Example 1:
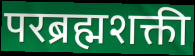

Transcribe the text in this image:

परब्रह्मशक्ती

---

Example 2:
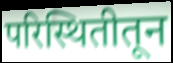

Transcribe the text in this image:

परिस्थितीतून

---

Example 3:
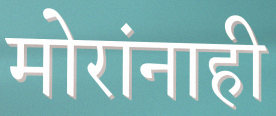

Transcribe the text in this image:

मोरांनाही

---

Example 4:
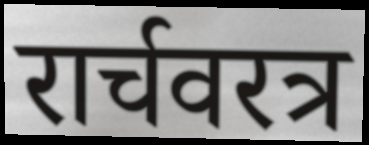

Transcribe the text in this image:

रार्चवरत्र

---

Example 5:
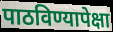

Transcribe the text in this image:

पाठविण्यापेक्षा